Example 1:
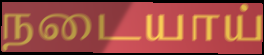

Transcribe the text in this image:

நடையாய்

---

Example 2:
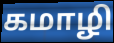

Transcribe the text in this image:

கமாழி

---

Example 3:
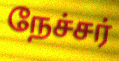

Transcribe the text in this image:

நேச்சர்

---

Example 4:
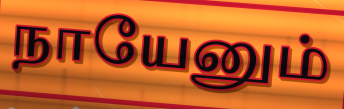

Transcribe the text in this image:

நாயேனும்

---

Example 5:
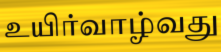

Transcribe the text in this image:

உயிர்வாழ்வது